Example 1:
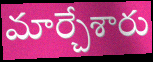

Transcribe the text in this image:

మార్చేశారు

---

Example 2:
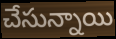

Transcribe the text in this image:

చేసున్నాయి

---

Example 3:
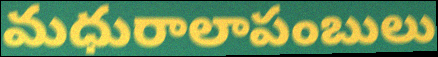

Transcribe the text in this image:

మధురాలాపంబులు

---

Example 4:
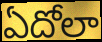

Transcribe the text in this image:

ఏదోలా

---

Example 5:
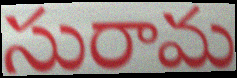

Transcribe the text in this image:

సురామ